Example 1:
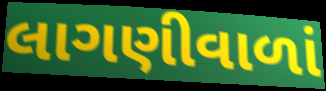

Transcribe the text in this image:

લાગણીવાળાં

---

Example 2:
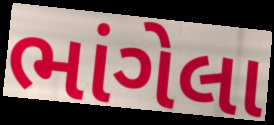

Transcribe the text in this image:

ભાંગેલા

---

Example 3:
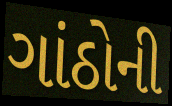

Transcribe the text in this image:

ગાંઠોની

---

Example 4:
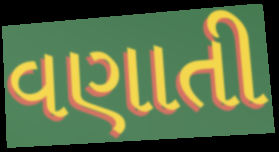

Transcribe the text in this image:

વણાતી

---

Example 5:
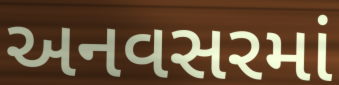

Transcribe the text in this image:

અનવસરમાં